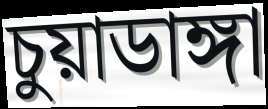
চুয়াডাঙ্গা